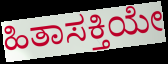
ಹಿತಾಸಕ್ತಿಯೇ